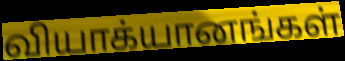
வியாக்யானங்கள்